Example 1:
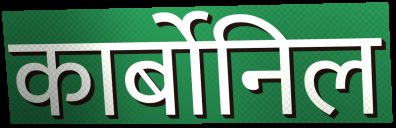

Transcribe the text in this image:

कार्बोनिल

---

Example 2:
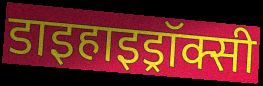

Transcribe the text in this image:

डाइहाइड्रॉक्सी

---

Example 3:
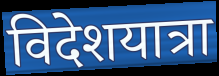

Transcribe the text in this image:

विदेशयात्रा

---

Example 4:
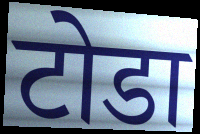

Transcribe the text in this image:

टोडा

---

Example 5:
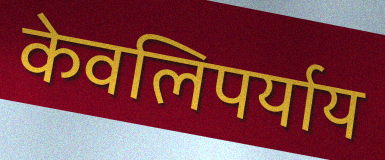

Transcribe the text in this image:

केवलिपर्याय